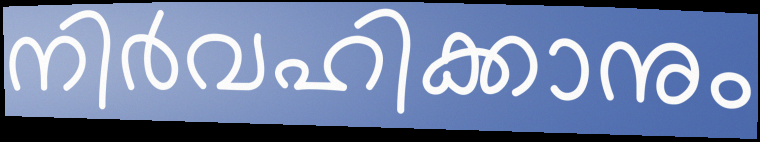
നിർവഹിക്കാനും